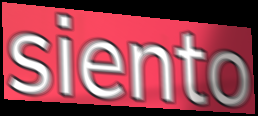
siento